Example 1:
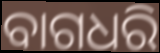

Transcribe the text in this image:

ବାଗଧରି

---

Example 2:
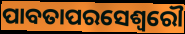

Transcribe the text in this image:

ପାବତାପରସେଶ୍ୱରୌ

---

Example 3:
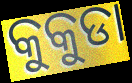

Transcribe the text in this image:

କୁକୁଡା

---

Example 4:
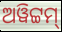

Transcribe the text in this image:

ଅୱିଟ୍ଟମ୍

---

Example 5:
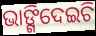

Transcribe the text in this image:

ଭାଙ୍ଗିଦେଇଚି